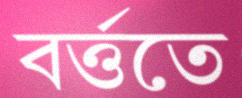
বর্ত্ততে